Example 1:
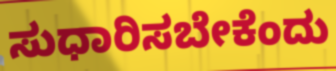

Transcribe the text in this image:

ಸುಧಾರಿಸಬೇಕೆಂದು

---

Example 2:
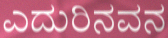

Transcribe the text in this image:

ಎದುರಿನವನ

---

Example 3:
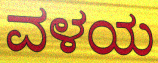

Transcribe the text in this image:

ವಳಯ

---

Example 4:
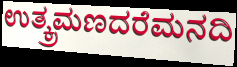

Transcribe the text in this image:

ಉತ್ಕ್ರಮಣದರೆಮನದಿ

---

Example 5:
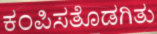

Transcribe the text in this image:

ಕಂಪಿಸತೊಡಗಿತು